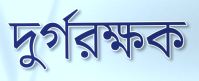
দুর্গরক্ষক